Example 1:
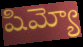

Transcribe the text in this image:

షిమ్యో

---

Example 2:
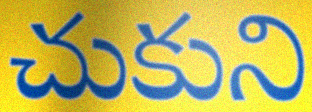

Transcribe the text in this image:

చుకుని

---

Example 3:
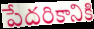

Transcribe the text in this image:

పేదరికానికి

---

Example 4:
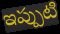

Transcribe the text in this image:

ఇప్పుటి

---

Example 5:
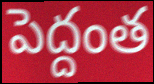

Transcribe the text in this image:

పెద్దంత